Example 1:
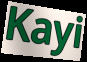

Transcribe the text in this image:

Kayi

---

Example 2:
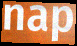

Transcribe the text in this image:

nap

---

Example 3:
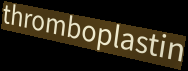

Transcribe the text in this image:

thromboplastin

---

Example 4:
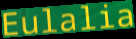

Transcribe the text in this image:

Eulalia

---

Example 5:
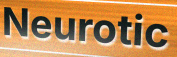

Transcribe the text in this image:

Neurotic